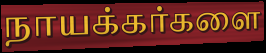
நாயக்கர்களை